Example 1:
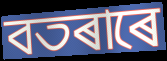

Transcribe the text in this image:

বতৰাৰে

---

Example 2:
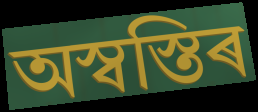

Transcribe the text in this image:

অস্বস্তিৰ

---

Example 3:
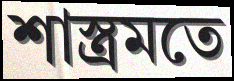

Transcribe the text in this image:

শাস্ত্ৰমতে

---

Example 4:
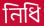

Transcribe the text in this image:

নিধি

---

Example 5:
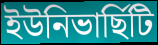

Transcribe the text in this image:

ইউনিভাৰ্ছিটি